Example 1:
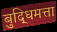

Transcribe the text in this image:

बुद्धिमत्ता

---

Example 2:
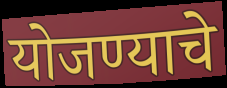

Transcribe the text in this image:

योजण्याचे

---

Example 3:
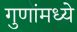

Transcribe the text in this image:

गुणांमध्ये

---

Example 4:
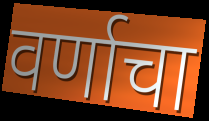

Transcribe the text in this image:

वर्णाचा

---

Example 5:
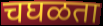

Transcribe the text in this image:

चघळता